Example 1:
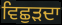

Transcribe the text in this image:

ਵਿਛੁੜਦਾ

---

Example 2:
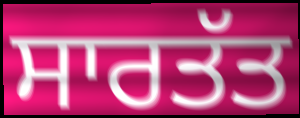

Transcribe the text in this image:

ਸਾਰਤੱਤ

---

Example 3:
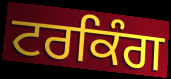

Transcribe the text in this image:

ਟਰਕਿੰਗ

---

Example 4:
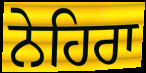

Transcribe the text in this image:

ਨੇਹਿਰਾ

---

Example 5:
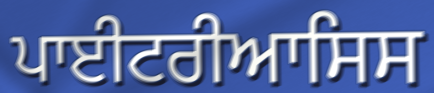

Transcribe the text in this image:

ਪਾਈਟਰੀਆਸਿਸ